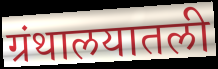
ग्रंथालयातली